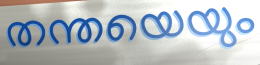
തന്തയെയും